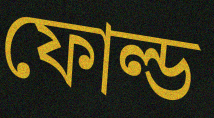
ফোল্ড